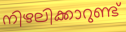
നിഴലിക്കാറുണ്ട്